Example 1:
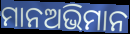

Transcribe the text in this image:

ମାନଅଭିମାନ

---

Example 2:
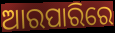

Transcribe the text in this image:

ଆରପାରିରେ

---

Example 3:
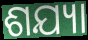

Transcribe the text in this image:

ଶଯ୍ୟା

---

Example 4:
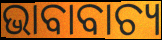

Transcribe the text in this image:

ଭାବାବାଚ୍ୟ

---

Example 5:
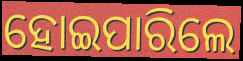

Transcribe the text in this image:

ହୋଇପାରିଲେ